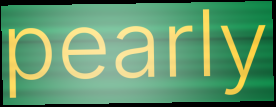
pearly